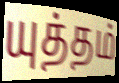
யுத்தம்